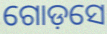
ଗୋଡ଼ସେ